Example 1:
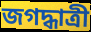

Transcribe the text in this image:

জগদ্ধাত্রী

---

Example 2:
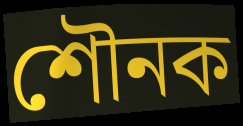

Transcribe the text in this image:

শৌনক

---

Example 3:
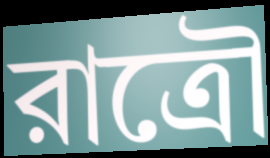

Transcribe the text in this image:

রাত্রৌ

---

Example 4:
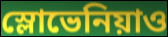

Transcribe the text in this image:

স্লোভেনিয়াও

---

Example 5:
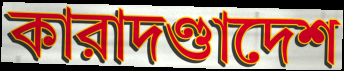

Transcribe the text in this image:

কারাদণ্ডাদেশ